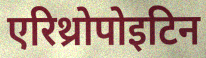
एरिथ्रोपोइटिन